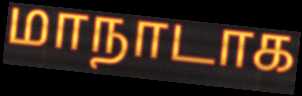
மாநாடாக